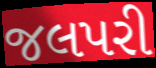
જલપરી